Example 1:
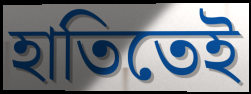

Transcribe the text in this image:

হাতিতেই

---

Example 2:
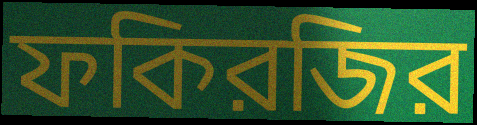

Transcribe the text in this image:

ফকিরজির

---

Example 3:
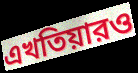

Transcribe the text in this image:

এখতিয়ারও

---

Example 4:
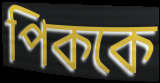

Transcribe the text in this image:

পিককে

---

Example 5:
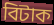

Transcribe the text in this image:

বিটাক